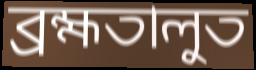
ব্ৰহ্মতালুত